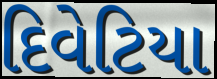
દિવેટિયા